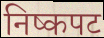
निष्कपट